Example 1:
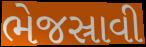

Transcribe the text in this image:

ભેજસ્રાવી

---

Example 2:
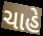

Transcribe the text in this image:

ચાહે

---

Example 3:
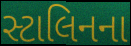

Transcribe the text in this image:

સ્ટાલિનના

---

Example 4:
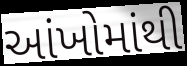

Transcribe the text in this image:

આંખોમાંથી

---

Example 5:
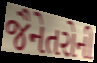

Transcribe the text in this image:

જૈનેતરોની